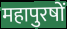
महापुरषों